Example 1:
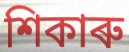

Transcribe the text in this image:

শিকাৰু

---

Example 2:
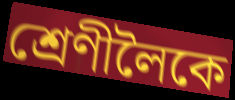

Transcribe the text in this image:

শ্ৰেণীলৈকে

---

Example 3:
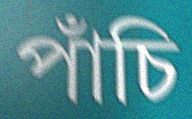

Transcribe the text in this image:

পাঁচি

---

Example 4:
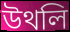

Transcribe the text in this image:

উথলি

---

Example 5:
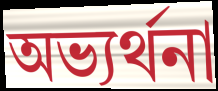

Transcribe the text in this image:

অভ্যৰ্থনা